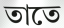
তাতে